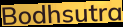
Bodhsutra